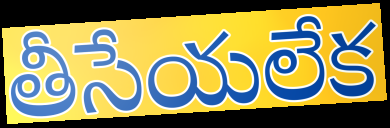
తీసేయలేక